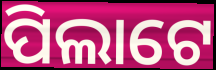
ପିଲାଟେ